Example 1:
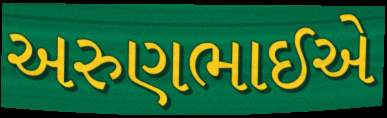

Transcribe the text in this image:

અરુણભાઈએ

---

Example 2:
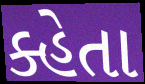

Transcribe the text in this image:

ક્હેતા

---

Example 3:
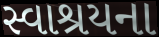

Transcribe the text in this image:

સ્વાશ્રયના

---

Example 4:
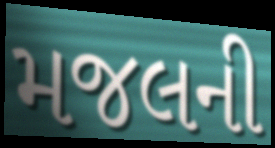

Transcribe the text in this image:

મજલની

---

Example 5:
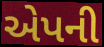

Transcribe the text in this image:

એપની